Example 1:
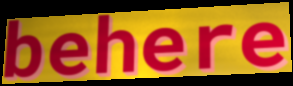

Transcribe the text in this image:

behere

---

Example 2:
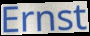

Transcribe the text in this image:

Ernst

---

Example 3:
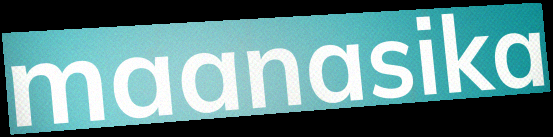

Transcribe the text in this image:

maanasika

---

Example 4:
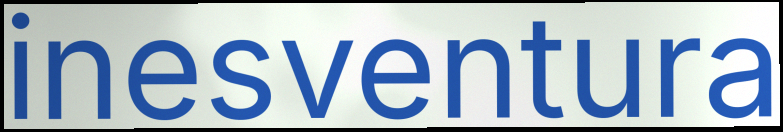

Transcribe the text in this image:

inesventura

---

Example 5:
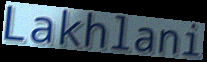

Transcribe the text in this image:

Lakhlani